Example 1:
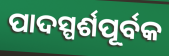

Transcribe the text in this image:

ପାଦସ୍ପର୍ଶପୂର୍ବକ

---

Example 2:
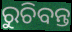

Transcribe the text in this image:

ରୁଚିବନ୍ତ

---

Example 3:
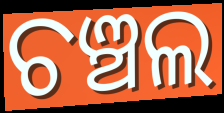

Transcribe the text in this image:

ଚଞ୍ଚଲ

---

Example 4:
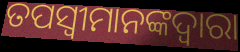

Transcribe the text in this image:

ତପସ୍ୱୀମାନଙ୍କଦ୍ୱାରା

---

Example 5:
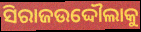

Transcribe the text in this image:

ସିରାଜଉଦ୍ଦୌଲାକୁ